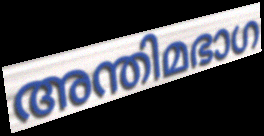
അന്തിമഭാഗ